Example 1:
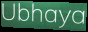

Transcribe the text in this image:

Ubhaya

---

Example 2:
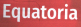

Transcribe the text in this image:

Equatoria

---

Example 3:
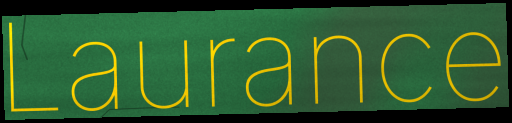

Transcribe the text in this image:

Laurance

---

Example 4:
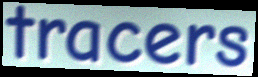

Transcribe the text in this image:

tracers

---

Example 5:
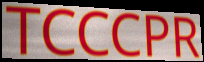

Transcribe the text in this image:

TCCCPR